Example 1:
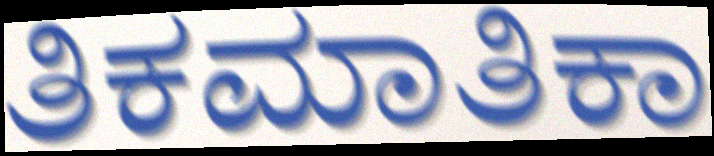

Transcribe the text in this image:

ತಿಕಮಾತಿಕಾ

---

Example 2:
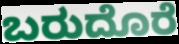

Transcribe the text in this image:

ಬರುದೊರೆ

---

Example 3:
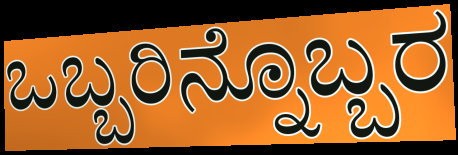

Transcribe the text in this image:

ಒಬ್ಬರಿನ್ನೊಬ್ಬರ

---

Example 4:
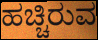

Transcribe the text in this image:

ಹಚ್ಚಿರುವ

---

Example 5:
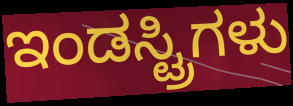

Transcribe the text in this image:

ಇಂಡಸ್ಟ್ರಿಗಳು